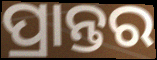
ପ୍ରାନ୍ତର